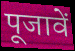
पूजावें